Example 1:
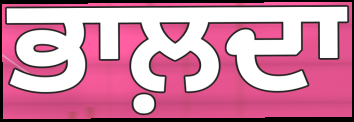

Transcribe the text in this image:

ਭਾਲ਼ਦਾ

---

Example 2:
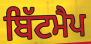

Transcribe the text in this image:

ਬਿੱਟਮੈਪ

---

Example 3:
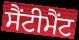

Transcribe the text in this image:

ਸੈਂਟੀਮੈਂਟ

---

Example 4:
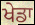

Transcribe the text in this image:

ਖੇਡਾ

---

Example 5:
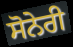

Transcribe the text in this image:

ਸੋਨੇਰੀ